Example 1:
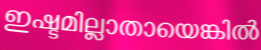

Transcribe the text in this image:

ഇഷ്ടമില്ലാതായെങ്കിൽ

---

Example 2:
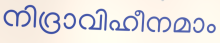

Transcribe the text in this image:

നിദ്രാവിഹീനമാം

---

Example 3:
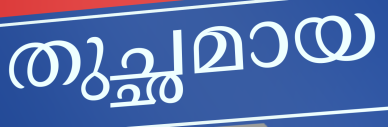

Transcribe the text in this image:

തുച്ഛമായ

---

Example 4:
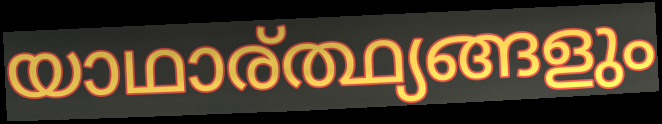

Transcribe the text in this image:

യാഥാര്ത്ഥ്യങ്ങളും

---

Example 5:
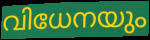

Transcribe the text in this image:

വിധേനയും